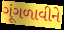
ગૂંગળાવીને